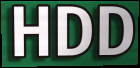
HDD